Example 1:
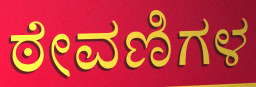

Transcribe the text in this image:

ಠೇವಣಿಗಳ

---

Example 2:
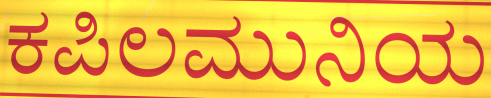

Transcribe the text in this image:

ಕಪಿಲಮುನಿಯ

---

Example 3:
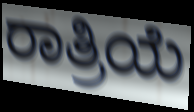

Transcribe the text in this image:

ರಾತ್ರಿಯೆ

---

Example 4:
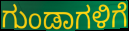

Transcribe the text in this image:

ಗುಂಡಾಗಳಿಗೆ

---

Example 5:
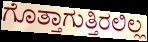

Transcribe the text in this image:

ಗೊತ್ತಾಗುತ್ತಿರಲಿಲ್ಲ